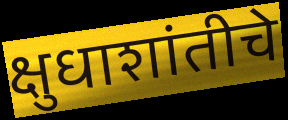
क्षुधाशांतीचे